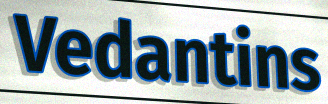
Vedantins